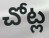
చోట్ల